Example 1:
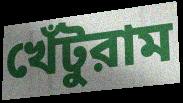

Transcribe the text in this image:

খেঁটুরাম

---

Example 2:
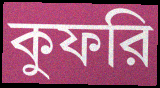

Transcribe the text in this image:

কুফরি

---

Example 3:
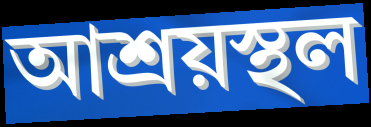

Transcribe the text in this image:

আশ্রয়স্থল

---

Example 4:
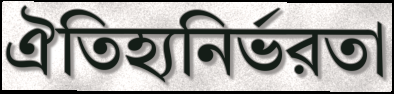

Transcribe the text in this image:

ঐতিহ্যনির্ভরতা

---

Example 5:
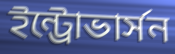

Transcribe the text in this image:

ইন্ট্রোভার্সন